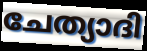
ചേത്യാദി